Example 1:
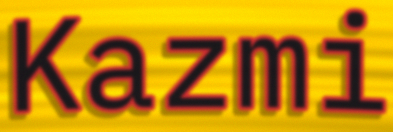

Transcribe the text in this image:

Kazmi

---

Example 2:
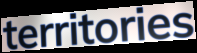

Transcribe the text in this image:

territories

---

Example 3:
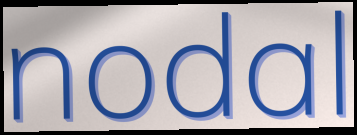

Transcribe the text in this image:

nodal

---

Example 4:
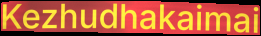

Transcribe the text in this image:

Kezhudhakaimai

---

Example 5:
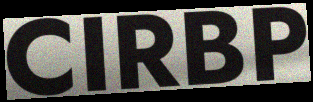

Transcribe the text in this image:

CIRBP